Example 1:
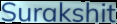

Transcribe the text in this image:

Surakshit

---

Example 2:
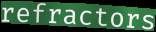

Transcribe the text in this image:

refractors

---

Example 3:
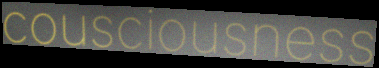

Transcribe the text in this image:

cousciousness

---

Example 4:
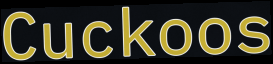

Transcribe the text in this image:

Cuckoos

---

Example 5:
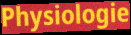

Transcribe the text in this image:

Physiologie